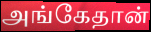
அங்கேதான்